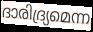
ദാരിദ്ര്യമെന്ന